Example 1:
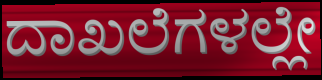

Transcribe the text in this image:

ದಾಖಲೆಗಳಲ್ಲೇ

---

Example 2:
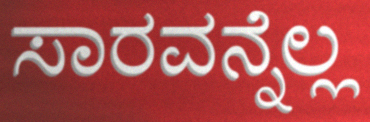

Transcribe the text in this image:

ಸಾರವನ್ನೆಲ್ಲ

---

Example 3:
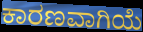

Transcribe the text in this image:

ಕಾರಣವಾಗಿಯೆ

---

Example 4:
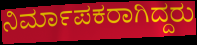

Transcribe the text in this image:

ನಿರ್ಮಾಪಕರಾಗಿದ್ದರು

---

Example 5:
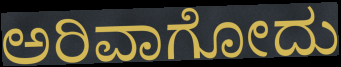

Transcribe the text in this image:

ಅರಿವಾಗೋದು